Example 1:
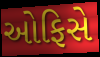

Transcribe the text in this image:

ઓફિસે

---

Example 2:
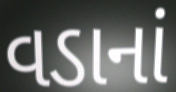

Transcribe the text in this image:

વડાનાં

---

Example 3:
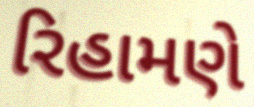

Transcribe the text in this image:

રિહામણે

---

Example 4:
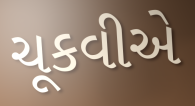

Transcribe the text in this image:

ચૂકવીએ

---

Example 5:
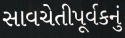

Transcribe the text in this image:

સાવચેતીપૂર્વકનું